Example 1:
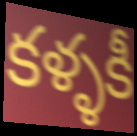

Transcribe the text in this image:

కళ్ళకీ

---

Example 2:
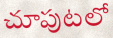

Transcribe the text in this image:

చూపుటలో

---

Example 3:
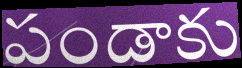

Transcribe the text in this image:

పండాకు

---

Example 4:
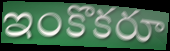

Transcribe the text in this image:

ఇంకొకరూ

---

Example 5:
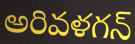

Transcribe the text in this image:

అరివళగన్